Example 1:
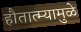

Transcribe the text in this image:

हौतात्म्यामुळे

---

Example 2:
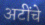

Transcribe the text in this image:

अटींचे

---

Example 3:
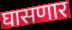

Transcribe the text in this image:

घासणार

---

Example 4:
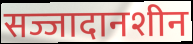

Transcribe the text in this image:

सज्जादानशीन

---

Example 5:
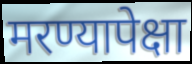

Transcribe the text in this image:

मरण्यापेक्षा